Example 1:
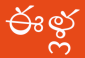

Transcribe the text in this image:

ఈళ్ల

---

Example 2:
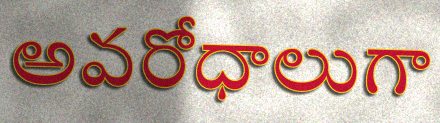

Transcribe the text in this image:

అవరోధాలుగా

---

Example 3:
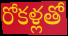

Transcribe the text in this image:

రోకళ్లతో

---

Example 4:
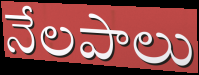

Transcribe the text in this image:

నేలపాలు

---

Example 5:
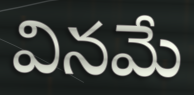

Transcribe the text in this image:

వినమే